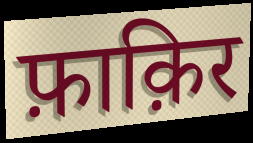
फ़ाक़िर